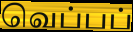
வெப்பப்